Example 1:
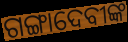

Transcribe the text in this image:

ଗଙ୍ଗାଦେବୀଙ୍କ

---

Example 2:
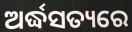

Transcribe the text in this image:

ଅର୍ଦ୍ଧସତ୍ୟରେ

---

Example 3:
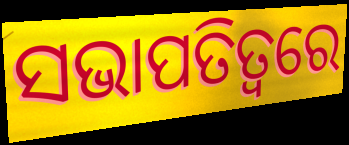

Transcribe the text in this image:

ସଭାପତିତ୍ଵରେ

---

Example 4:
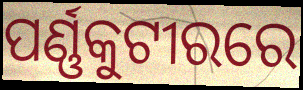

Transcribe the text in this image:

ପର୍ଣ୍ଣକୁଟୀରରେ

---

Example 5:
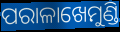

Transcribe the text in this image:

ପରାଳାଖେମୁଣ୍ଡି